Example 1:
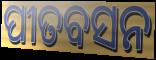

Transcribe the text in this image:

ପୀତବସନ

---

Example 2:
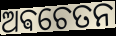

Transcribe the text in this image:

ଅଵଚେତନ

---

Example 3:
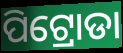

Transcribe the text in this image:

ପିଟ୍ରୋଡା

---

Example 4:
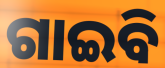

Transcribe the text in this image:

ଗାଇବି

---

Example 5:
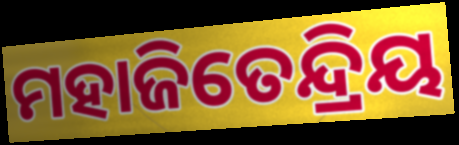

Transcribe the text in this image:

ମହାଜିତେନ୍ଦ୍ରିୟ